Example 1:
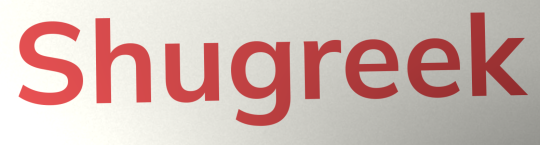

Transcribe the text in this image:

Shugreek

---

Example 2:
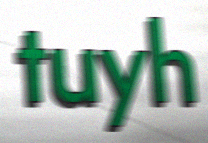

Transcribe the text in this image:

tuyh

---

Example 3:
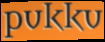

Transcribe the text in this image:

pukku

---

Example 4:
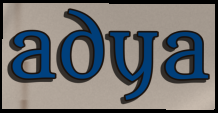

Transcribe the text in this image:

adya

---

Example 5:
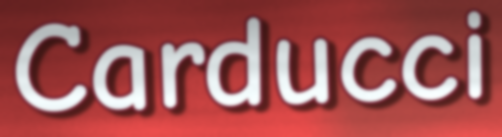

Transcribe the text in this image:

Carducci